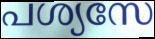
പശ്യസേ